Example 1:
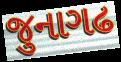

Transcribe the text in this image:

જુનાગઢ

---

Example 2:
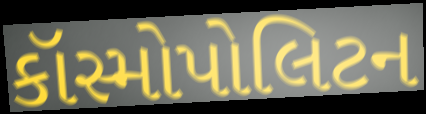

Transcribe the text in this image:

કૉસ્મોપોલિટન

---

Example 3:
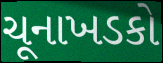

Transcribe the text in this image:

ચૂનાખડકો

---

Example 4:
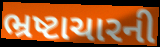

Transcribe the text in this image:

ભ્રષ્ટાચારની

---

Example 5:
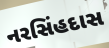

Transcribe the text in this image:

નરસિંહદાસ